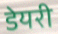
डेयरी